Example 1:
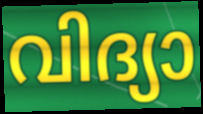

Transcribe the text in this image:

വിദ്യാ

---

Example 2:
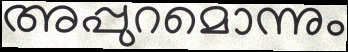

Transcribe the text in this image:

അപ്പുറമൊന്നും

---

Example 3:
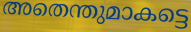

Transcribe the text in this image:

അതെന്തുമാകട്ടെ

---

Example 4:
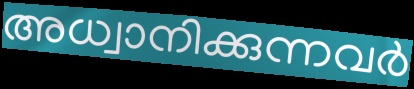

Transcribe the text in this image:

അധ്വാനിക്കുന്നവർ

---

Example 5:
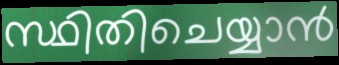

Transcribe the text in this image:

സ്ഥിതിചെയ്യാൻ